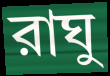
রাঘু